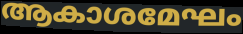
ആകാശമേഘം